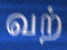
வற்